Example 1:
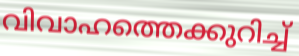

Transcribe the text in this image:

വിവാഹത്തെക്കുറിച്ച്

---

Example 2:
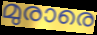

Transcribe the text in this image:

മുരാരെ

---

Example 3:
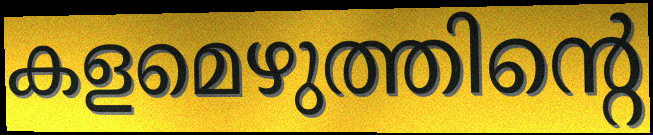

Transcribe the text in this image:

കളമെഴുത്തിന്റെ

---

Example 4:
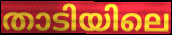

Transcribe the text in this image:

താടിയിലെ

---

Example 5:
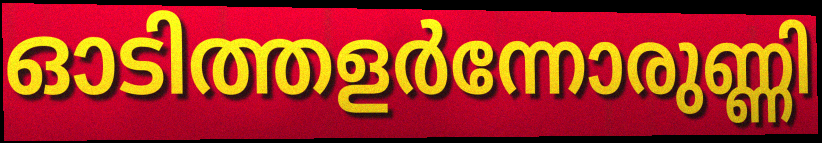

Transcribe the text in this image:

ഓടിത്തളർന്നോരുണ്ണി